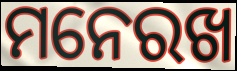
ମନେରଖ